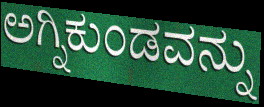
ಅಗ್ನಿಕುಂಡವನ್ನು